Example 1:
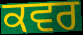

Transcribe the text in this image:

ਕਵਰ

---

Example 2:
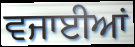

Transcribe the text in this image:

ਵਜਾਈਆਂ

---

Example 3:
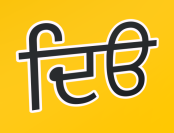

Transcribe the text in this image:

ਦਿੳ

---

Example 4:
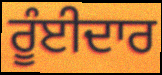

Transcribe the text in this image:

ਰੂੰਈਦਾਰ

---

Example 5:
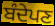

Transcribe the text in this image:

ਬੰਦੇਪਣ